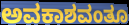
ಅವಕಾಶವಂತೂ